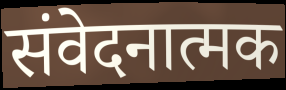
संवेदनात्मक